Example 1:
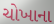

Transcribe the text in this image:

ચોખાના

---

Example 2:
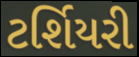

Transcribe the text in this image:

ટર્શિયરી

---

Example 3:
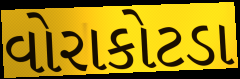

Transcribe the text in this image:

વોરાકોટડા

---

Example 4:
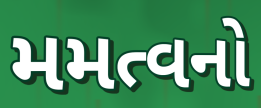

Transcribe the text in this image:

મમત્વનો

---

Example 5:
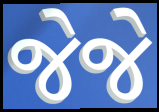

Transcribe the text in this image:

જેજે